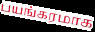
பயங்கரமாக